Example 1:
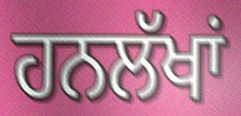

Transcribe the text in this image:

ਹਨਲੱਖਾਂ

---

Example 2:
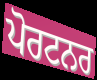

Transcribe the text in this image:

ਪੋਰਟਨਰ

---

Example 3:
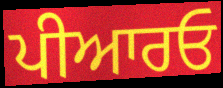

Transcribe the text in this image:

ਪੀਆਰਓ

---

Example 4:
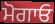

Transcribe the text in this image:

ਮੋਗਾਓ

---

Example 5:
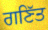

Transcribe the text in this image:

ਗਣਿੱਤ